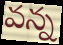
వన్న